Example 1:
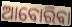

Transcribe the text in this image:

ଆବୋରିବା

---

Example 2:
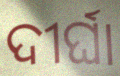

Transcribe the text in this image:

ଦୀର୍ଘା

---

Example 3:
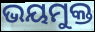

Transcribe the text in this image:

ଭୟମୁକ୍ତ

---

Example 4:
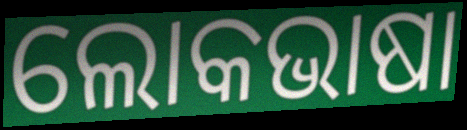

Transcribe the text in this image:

ଲୋକଭାଷା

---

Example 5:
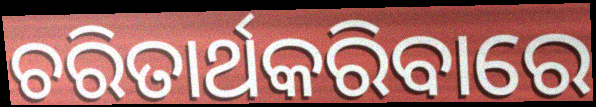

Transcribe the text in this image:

ଚରିତାର୍ଥକରିବାରେ